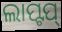
ଲାପ୍ଟପ୍